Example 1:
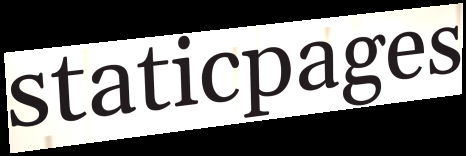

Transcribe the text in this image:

staticpages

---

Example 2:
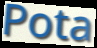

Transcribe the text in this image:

Pota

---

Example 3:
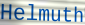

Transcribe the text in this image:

Helmuth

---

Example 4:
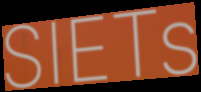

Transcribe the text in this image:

SIETs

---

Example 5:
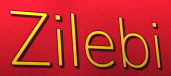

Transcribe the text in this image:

Zilebi